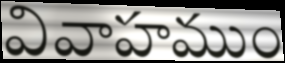
వివాహముం